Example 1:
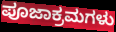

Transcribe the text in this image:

ಪೂಜಾಕ್ರಮಗಳು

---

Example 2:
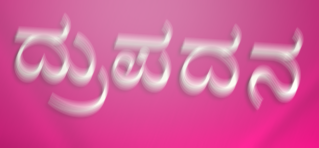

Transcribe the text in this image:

ದ್ರುಪದನ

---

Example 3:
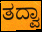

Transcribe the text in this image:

ತದ್ವಾ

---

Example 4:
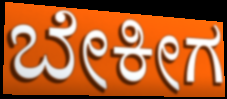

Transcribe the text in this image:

ಬೇಕೀಗ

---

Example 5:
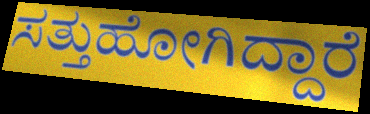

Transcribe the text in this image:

ಸತ್ತುಹೋಗಿದ್ದಾರೆ